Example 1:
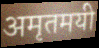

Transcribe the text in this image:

अमृतमयी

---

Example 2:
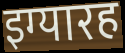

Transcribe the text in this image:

इग्यारह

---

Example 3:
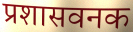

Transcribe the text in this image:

प्रशासवनक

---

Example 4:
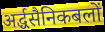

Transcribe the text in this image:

अर्द्धसैनिकबलों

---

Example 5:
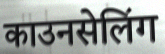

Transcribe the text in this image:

काउनसेलिंग